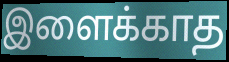
இளைக்காத